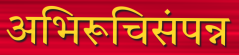
अभिरूचिसंपन्न